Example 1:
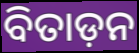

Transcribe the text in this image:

ବିତାଡ଼ନ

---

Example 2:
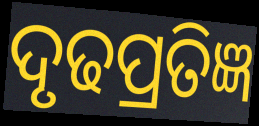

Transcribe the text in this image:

ଦୃଢପ୍ରତିଜ୍ଞ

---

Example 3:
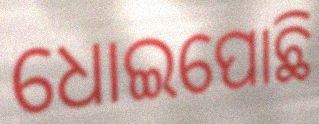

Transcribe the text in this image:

ଧୋଇପୋଛି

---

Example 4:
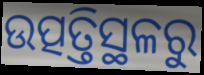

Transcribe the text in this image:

ଉତ୍ପତ୍ତିସ୍ଥଳରୁ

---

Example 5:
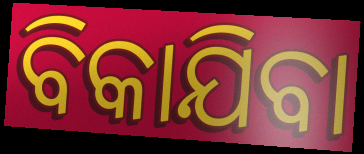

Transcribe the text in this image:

ବିକାଯିବା